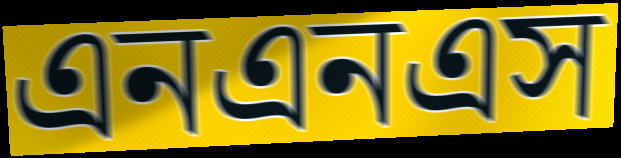
এনএনএস